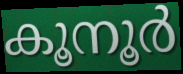
കൂനൂർ